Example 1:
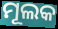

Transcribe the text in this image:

ମୂଲକ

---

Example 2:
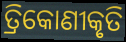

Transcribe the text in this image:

ତ୍ରିକୋଣୀକୃତି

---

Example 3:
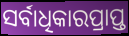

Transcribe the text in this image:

ସର୍ବାଧିକାରପ୍ରାପ୍ତ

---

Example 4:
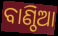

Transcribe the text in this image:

ବାଣ୍ଠିଆ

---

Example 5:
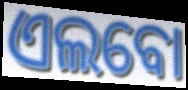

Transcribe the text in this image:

ଏଲବୋ